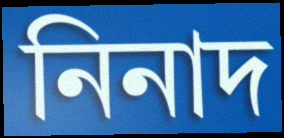
নিনাদ